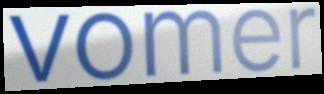
vomer